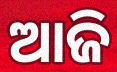
ଆଜି